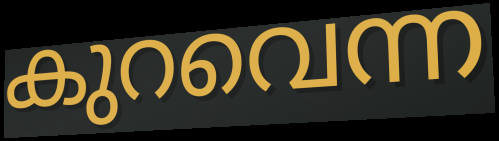
കുറവെന്ന